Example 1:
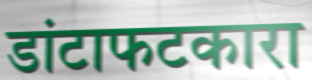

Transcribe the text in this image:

डांटाफटकारा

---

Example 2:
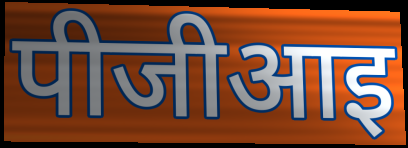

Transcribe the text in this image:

पीजीआइ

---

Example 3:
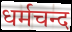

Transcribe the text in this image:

धर्मचन्द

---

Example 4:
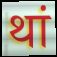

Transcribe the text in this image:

थां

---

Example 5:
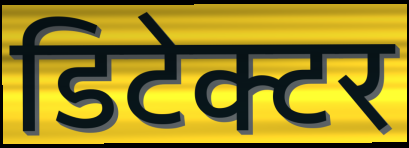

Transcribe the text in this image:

डिटेक्टर